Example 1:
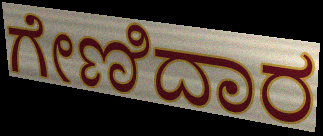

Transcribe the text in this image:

ಗೇಣಿದಾರ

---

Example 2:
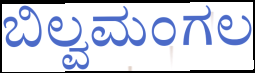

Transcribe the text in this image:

ಬಿಲ್ವಮಂಗಲ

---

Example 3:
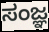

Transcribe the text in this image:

ಸಂಜ್ಞ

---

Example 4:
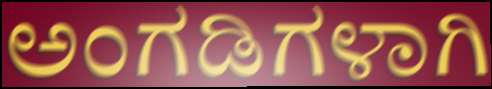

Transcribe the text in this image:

ಅಂಗಡಿಗಳಾಗಿ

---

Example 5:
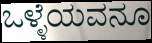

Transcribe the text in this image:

ಒಳ್ಳೆಯವನೂ